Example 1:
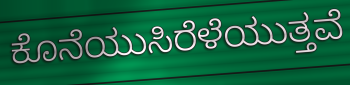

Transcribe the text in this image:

ಕೊನೆಯುಸಿರೆಳೆಯುತ್ತವೆ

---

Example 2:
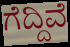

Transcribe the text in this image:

ಗೆದ್ದಿವೆ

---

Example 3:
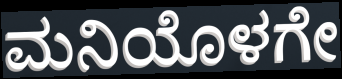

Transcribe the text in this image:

ಮನಿಯೊಳಗೇ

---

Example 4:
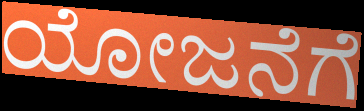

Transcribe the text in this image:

ಯೋಜನೆಗೆ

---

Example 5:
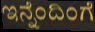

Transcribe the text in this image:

ಇನ್ನೆಂದಿಂಗೆ